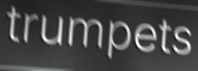
trumpets